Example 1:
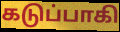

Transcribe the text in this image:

கடுப்பாகி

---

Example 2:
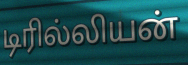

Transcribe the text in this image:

டிரில்லியன்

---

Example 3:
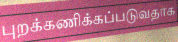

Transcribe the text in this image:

புறக்கணிக்கப்படுவதாக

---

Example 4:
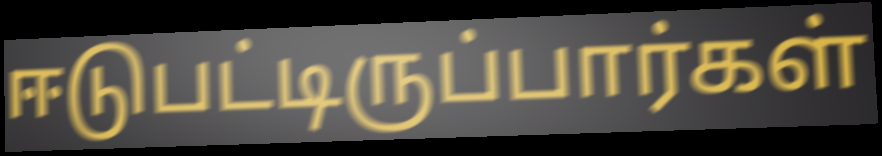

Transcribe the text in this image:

ஈடுபட்டிருப்பார்கள்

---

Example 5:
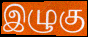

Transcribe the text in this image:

இழுகு